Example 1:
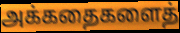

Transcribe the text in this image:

அக்கதைகளைத்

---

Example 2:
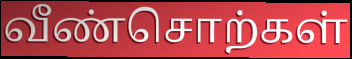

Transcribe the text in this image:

வீண்சொற்கள்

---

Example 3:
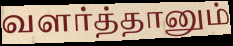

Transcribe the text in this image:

வளர்த்தானும்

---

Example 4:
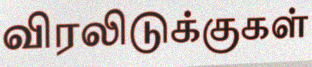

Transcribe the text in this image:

விரலிடுக்குகள்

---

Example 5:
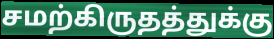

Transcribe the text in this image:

சமற்கிருதத்துக்கு